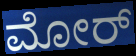
ಮೋರ್